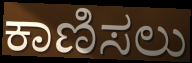
ಕಾಣಿಸಲು